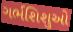
ગર્ભશિશુઓ